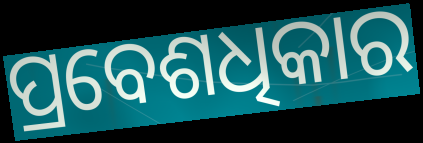
ପ୍ରବେଶଧିକାର